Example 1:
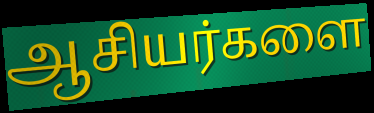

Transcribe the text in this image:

ஆசியர்களை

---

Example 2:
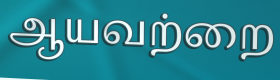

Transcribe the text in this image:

ஆயவற்றை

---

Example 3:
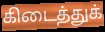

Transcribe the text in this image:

கிடைத்துக்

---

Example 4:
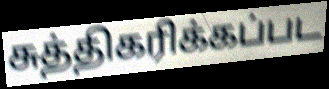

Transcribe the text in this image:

சுத்திகரிக்கப்பட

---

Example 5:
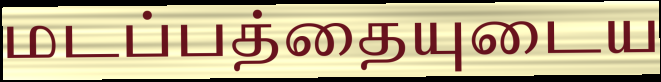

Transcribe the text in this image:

மடப்பத்தையுடைய